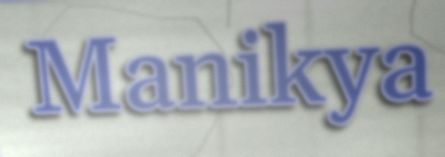
Manikya